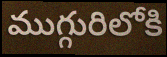
ముగ్గురిలోకి